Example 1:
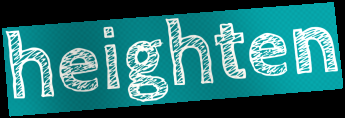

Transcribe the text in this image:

heighten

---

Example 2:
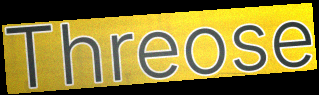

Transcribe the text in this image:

Threose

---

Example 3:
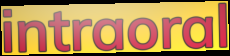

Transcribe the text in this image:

intraoral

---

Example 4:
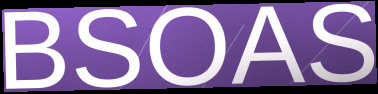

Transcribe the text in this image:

BSOAS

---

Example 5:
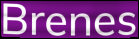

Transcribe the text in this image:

Brenes